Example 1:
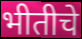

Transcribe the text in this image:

भीतीचे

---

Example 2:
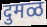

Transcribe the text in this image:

दुमळ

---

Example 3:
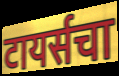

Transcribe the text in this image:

टायर्सचा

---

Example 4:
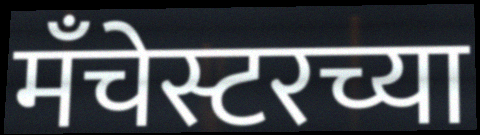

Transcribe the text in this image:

मँचेस्टरच्या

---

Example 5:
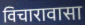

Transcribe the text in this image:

विचारावासा